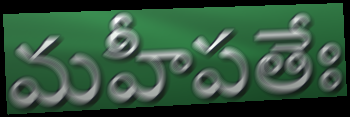
మహీపతేః